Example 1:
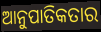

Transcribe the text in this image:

ଆନୁପାତିକତାର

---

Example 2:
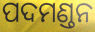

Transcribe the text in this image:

ପଦମଣ୍ଡନ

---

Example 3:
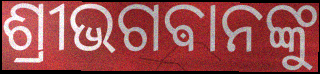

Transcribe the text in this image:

ଶ୍ରୀଭଗଵାନଙ୍କୁ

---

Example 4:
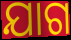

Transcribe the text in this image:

ଯାଗ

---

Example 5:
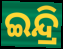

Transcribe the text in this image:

ଇନ୍ଦ୍ରି